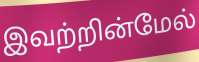
இவற்றின்மேல்